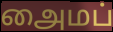
அைமப்